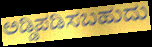
ಅಡ್ಡಿಪಡಿಸಬಹುದು